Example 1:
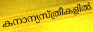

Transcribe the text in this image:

കനാന്യസ്ത്രീകളിൽ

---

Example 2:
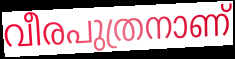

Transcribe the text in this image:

വീരപുത്രനാണ്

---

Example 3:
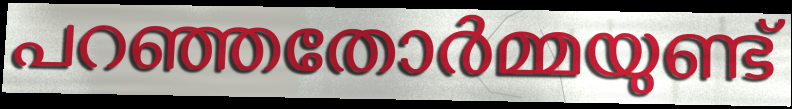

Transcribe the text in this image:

പറഞ്ഞതോർമ്മയുണ്ട്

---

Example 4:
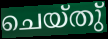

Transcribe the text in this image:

ചെയ്തു്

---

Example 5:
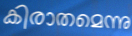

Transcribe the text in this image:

കിരാതമെന്നു